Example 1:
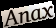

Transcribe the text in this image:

Anax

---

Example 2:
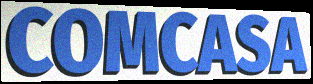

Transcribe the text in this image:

COMCASA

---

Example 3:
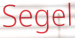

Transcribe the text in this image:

Segel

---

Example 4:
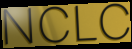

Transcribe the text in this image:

NCLC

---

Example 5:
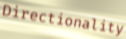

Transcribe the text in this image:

Directionality